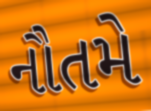
નૌતમે